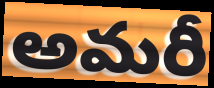
అమరీ